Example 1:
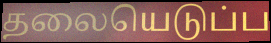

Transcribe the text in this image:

தலையெடுப்ப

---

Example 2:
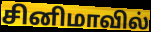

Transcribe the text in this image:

சினிமாவில்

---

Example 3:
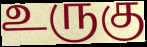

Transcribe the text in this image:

உருகு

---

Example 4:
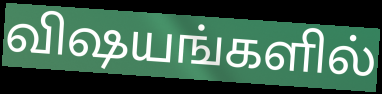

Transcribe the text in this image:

விஷயங்களில்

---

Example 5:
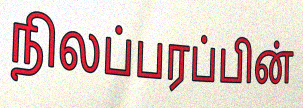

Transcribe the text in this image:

நிலப்பரப்பின்